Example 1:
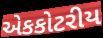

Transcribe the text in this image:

એકકોટરીય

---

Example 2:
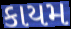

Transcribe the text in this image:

કાયમ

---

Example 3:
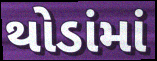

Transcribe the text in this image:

થોડાંમાં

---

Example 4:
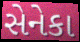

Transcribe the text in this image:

સેનેકા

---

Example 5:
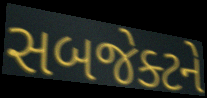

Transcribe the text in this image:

સબજેક્ટને